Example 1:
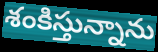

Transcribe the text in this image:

శంకిస్తున్నాను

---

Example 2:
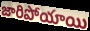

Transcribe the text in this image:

జారిపోయాయి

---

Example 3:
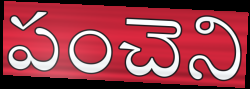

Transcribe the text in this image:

పంచెని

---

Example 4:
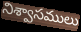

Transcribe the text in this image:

నిశ్వాసములు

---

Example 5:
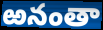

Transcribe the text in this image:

ఱనంతా